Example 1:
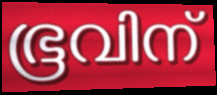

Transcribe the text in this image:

ഭൂവിന്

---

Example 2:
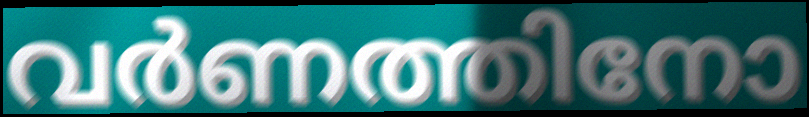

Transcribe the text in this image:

വർണത്തിനോ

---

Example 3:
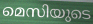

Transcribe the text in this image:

മെസിയുടെ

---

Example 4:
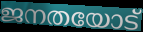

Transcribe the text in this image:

ജനതയോട്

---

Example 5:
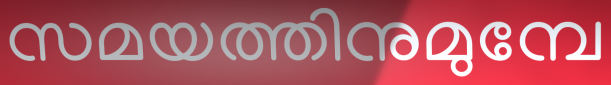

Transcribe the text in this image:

സമയത്തിനുമുമ്പേ